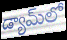
డ్యామ్‌లో